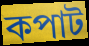
কপাট